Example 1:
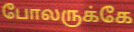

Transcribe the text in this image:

போலருக்கே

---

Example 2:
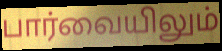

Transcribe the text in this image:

பார்வையிலும்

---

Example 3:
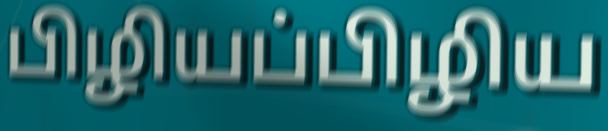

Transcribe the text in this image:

பிழியப்பிழிய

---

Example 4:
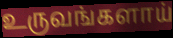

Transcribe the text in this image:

உருவங்களாய்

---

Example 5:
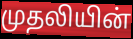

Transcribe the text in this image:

முதலியின்